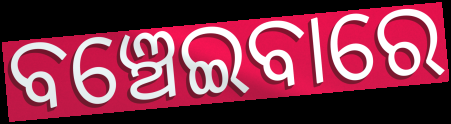
ବଞ୍ଚେଇବାରେ